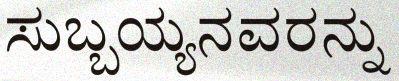
ಸುಬ್ಬಯ್ಯನವರನ್ನು